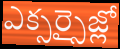
ఎక్సర్సైజ్లో